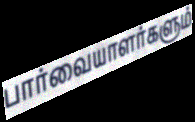
பார்வையாளர்களும்